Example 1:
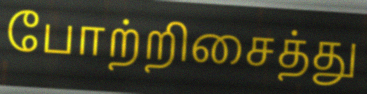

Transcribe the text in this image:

போற்றிசைத்து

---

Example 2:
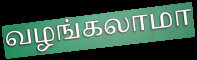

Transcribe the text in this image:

வழங்கலாமா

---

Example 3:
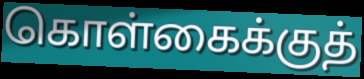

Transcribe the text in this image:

கொள்கைக்குத்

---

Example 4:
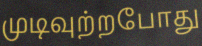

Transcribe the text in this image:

முடிவுற்றபோது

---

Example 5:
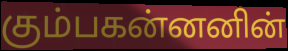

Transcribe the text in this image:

கும்பகன்னனின்